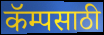
कॅम्पसाठी